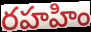
రహహిం